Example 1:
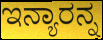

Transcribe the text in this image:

ಇನ್ಯಾರನ್ನ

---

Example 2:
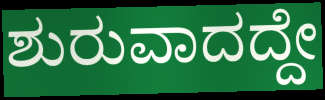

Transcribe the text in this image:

ಶುರುವಾದದ್ದೇ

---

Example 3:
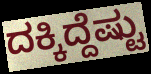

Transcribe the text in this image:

ದಕ್ಕಿದ್ದೆಷ್ಟು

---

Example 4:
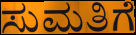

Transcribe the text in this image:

ಸುಮತಿಗೆ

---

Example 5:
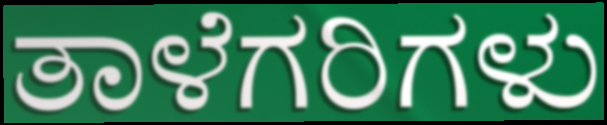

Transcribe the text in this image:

ತಾಳೆಗರಿಗಳು